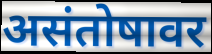
असंतोषावर